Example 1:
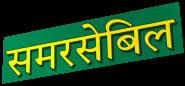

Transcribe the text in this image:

समरसेबिल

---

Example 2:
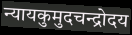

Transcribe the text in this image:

न्यायकुमुदचन्द्रोदय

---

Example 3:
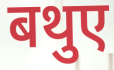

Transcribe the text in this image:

बथुए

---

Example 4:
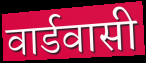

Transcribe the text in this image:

वार्डवासी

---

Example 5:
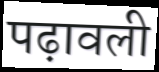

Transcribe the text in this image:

पढ़ावली